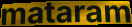
mataram